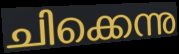
ചിക്കെന്നു